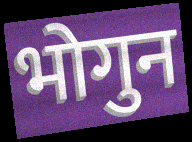
भोगुन